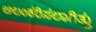
ಅಲಂಕರಿಸಲಾಗಿತ್ತು